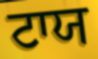
ਟਾਯ